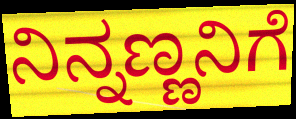
ನಿನ್ನಣ್ಣನಿಗೆ